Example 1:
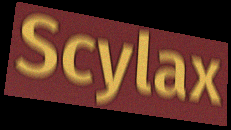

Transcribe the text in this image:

Scylax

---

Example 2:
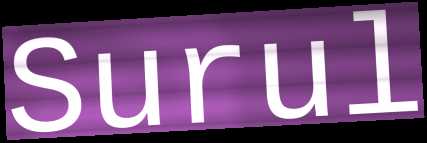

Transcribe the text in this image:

Surul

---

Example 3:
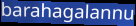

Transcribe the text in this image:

barahagalannu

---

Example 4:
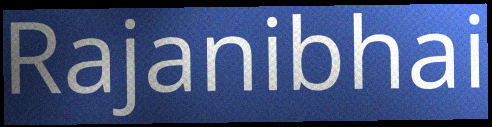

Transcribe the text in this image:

Rajanibhai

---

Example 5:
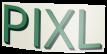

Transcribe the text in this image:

PIXL